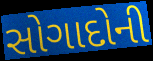
સોગાદોની